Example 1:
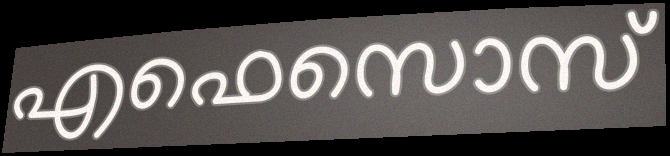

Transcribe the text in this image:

എഫെസൊസ്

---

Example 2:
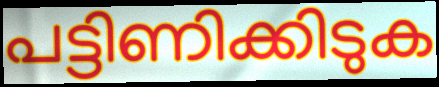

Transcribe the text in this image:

പട്ടിണിക്കിടുക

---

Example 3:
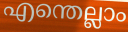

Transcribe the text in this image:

എന്തെല്ലാം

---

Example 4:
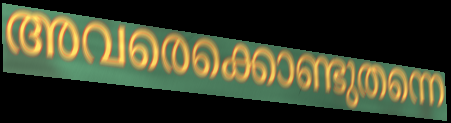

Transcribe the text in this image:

അവരെക്കൊണ്ടുതന്നെ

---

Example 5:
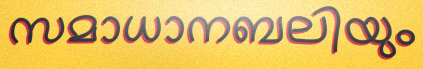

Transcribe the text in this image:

സമാധാനബലിയും